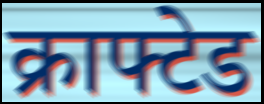
क्राफ्टेड